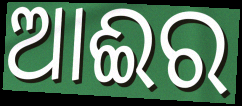
ଆଈର